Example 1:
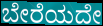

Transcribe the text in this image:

ಬೇರೆಯದೇ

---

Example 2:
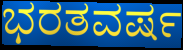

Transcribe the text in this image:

ಭರತವರ್ಷ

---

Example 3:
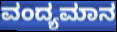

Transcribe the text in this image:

ವಂದ್ಯಮಾನ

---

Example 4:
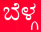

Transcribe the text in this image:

ಬೆಳ್ಗ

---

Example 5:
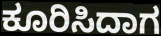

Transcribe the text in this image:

ಕೂರಿಸಿದಾಗ